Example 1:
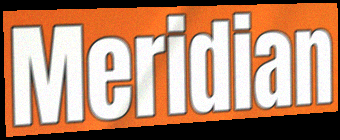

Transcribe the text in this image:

Meridian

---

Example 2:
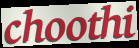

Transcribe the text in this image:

choothi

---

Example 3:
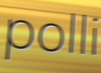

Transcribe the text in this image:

polli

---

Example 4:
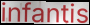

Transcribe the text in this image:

infantis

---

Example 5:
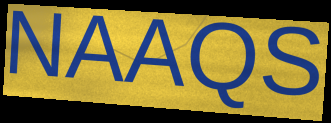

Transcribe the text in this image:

NAAQS